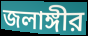
জলাঙ্গীর